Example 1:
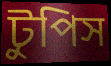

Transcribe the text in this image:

টুপিস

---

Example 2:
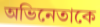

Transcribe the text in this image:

অভিনেতাকে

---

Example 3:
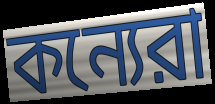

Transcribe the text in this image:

কন্যেরা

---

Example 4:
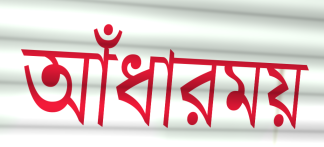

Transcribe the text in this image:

আঁধারময়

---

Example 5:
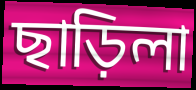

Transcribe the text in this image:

ছাড়িলা